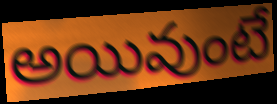
అయివుంటే